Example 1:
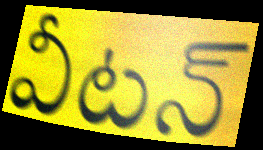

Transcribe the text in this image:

వీటన్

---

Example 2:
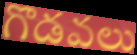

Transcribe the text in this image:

గొడవలు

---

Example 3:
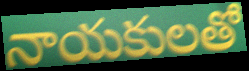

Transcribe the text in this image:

నాయకులతో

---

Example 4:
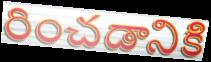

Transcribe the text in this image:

రించడానికి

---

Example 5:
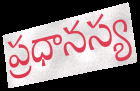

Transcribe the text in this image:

ప్రధానస్య